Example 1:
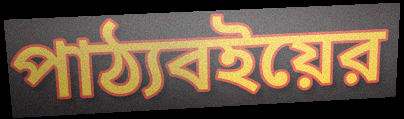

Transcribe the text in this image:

পাঠ্যবইয়ের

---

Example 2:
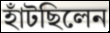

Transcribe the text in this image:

হাঁটছিলেন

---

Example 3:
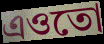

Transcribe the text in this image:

এওতো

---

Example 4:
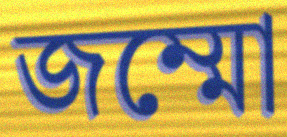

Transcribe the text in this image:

জম্মো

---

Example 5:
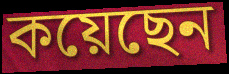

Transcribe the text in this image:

কয়েছেন